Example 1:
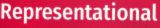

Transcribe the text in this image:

Representational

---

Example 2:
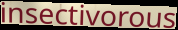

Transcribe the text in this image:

insectivorous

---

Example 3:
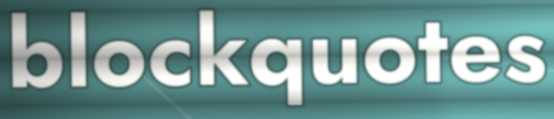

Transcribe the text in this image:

blockquotes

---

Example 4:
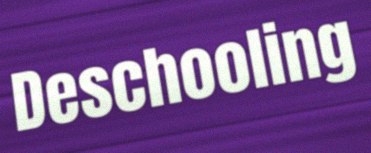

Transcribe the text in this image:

Deschooling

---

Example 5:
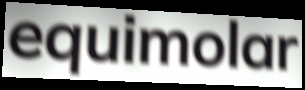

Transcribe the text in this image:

equimolar